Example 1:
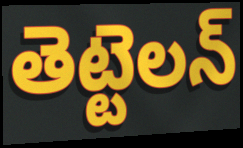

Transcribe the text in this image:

తెట్టెలన్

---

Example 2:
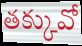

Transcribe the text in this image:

తక్కువో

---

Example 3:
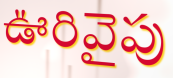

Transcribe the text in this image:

ఊరివైపు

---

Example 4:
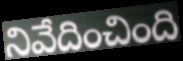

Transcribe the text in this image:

నివేదించింది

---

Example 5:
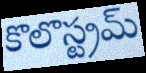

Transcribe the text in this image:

కొలొస్ట్రమ్